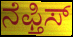
ನೆಫ್ತಿಸ್